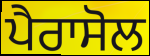
ਪੈਰਾਸੋਲ